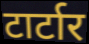
टार्टार